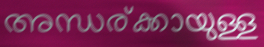
അന്ധര്ക്കായുള്ള